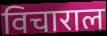
विचाराल